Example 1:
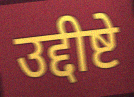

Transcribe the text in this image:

उद्दीष्टे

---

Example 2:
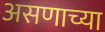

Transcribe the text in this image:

असणाच्या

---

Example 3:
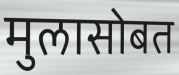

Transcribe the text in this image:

मुलासोबत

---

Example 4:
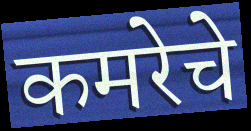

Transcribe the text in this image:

कमरेचे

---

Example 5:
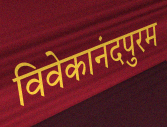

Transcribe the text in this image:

विवेकानंदपुरम